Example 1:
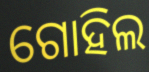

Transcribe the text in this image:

ଗୋହିଲ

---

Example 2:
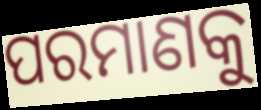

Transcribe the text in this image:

ପରମାଣକୁ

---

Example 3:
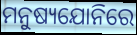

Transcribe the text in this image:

ମନୁଷ୍ୟଯୋନିରେ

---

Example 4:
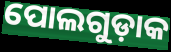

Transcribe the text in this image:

ପୋଲଗୁଡ଼ାକ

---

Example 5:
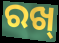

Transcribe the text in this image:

ରଖ୍